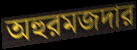
অহুরমজদার